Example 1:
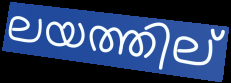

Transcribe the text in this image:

ലയത്തില്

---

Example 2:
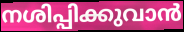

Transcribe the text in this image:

നശിപ്പിക്കുവാൻ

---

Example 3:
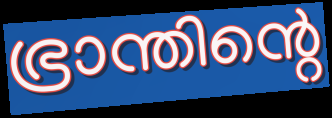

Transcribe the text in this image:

ഭ്രാന്തിന്റെ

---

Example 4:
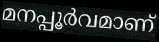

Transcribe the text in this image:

മനപ്പൂർവമാണ്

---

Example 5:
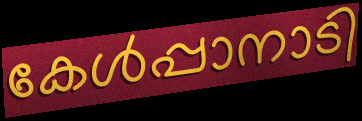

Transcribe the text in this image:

കേൾപ്പാനാടി